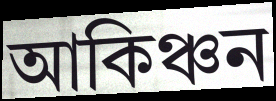
আকিঞ্চন